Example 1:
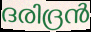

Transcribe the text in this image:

ദരിദ്രൻ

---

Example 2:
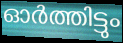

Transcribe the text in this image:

ഓർത്തിട്ടും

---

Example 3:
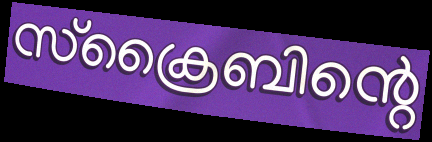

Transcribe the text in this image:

സ്ക്രൈബിന്റെ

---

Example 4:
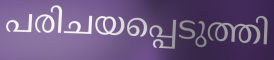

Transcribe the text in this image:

പരിചയപ്പെടുത്തി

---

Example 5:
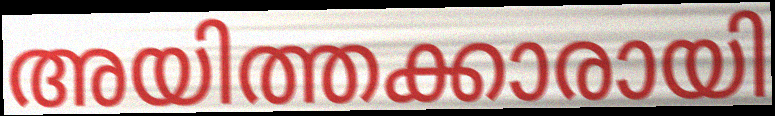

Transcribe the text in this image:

അയിത്തക്കാരായി